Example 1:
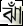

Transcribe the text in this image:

ঝাঁ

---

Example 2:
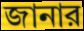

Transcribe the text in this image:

জানার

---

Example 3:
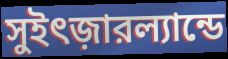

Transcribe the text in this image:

সুইৎজ়ারল্যান্ডে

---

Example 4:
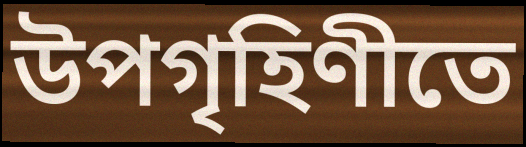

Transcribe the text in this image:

উপগৃহিণীতে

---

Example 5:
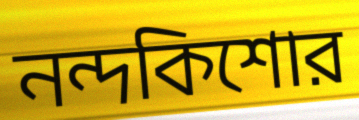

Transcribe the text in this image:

নন্দকিশোর